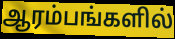
ஆரம்பங்களில்